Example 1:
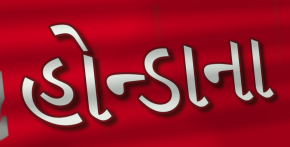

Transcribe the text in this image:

હોન્ડાના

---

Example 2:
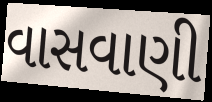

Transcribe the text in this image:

વાસવાણી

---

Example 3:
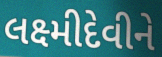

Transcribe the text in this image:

લક્ષ્મીદેવીને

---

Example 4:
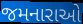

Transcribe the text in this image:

જમનારાઓ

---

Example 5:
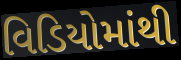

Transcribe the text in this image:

વિડિયોમાંથી